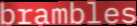
brambles